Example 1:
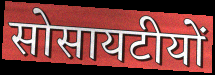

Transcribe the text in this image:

सोसायटीयों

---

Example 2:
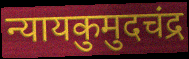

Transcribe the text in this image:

न्यायकुमुदचंद्र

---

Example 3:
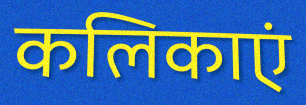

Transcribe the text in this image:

कलिकाएं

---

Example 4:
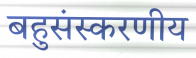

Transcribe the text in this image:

बहुसंस्करणीय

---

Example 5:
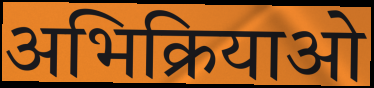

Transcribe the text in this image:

अभिक्रियाओ